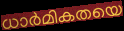
ധാർമികതയെ